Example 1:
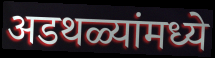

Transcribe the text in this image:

अडथळ्यांमध्ये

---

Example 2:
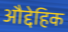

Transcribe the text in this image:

औद्देहिक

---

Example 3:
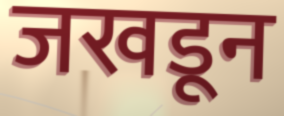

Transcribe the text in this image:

जखडून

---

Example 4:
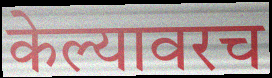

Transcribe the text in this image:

केल्यावरच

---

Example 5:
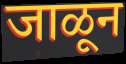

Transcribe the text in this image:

जाळून